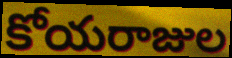
కోయరాజుల